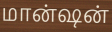
மான்ஷன்